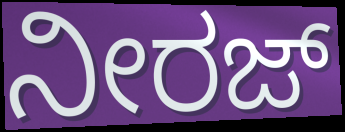
ನೀರಜ್